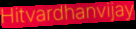
Hitvardhanvijay